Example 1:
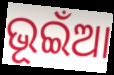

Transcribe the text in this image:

ଭୂଇଁଆ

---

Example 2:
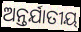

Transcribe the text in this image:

ଅନ୍ତର୍ଯାତୀୟ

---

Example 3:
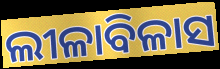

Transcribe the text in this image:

ଲୀଳାବିଳାସ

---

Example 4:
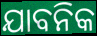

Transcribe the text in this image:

ଯାବନିକ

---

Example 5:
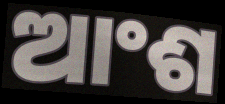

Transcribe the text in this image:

ଆଂଶ